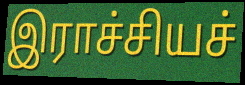
இராச்சியச்